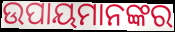
ଉପାୟମାନଙ୍କର